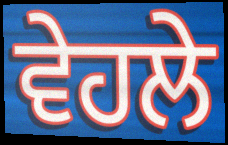
ਵੇਹਲੇ